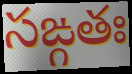
సఙ్గతః